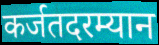
कर्जतदरम्यान